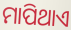
ମାପିଥାଏ